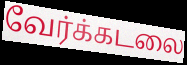
வேர்க்கடலை